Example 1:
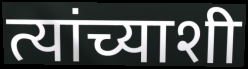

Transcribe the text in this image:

त्यांच्याशी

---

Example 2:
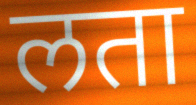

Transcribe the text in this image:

लता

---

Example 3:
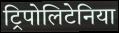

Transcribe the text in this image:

ट्रिपोलिटेनिया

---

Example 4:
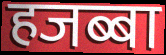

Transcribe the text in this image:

हजब्बा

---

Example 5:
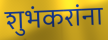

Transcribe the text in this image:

शुभंकरांना